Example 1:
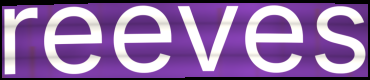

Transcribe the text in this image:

reeves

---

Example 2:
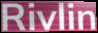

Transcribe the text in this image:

Rivlin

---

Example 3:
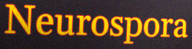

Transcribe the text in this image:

Neurospora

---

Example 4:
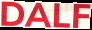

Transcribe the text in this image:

DALF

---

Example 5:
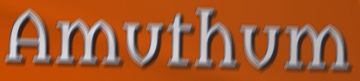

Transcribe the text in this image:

Amuthum